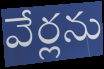
వేర్లను